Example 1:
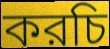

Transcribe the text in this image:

করচি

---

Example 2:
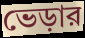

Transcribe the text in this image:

ভেড়ার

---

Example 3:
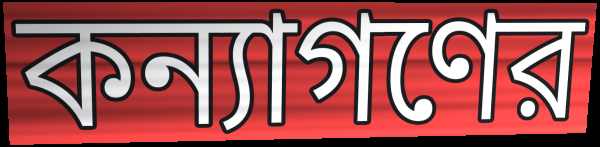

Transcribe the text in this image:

কন্যাগণের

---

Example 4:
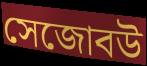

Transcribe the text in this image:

সেজোবউ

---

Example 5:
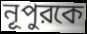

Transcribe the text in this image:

নূপুরকে